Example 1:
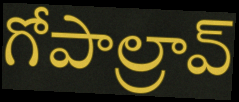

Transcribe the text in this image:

గోపాల్రావ్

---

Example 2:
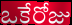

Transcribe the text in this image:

ఒకేరోజు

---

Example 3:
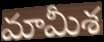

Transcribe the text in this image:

మామీశ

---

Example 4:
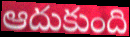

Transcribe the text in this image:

ఆదుకుంది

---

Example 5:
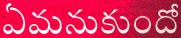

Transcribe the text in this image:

ఏమనుకుందో